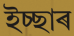
ইচ্ছাৰ